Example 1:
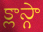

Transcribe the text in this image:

క్లాస్గా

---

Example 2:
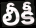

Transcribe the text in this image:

లీకీ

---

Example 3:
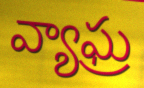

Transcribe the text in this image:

వ్యాఘ్ర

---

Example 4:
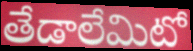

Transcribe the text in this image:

తేడాలేమిటో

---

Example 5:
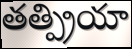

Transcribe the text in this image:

తత్ప్రియా